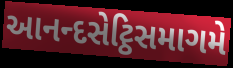
આનન્દસેટ્ઠિસમાગમે